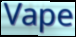
Vape